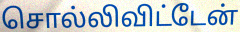
சொல்லிவிட்டேன்